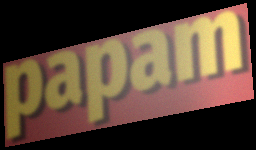
papam